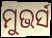
ମୁଭର୍ସ